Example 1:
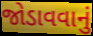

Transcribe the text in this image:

જોડાવવાનું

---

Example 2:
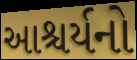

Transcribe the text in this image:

આશ્ચર્યનો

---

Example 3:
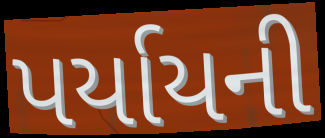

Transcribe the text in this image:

પર્યાયની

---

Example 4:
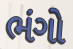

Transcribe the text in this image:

ભંગો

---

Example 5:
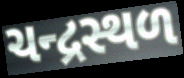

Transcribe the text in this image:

ચન્દ્રસ્થળ